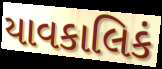
યાવકાલિકં